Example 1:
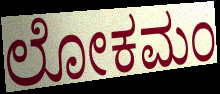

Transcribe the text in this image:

ಲೋಕಮಂ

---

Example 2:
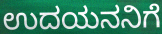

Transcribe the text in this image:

ಉದಯನನಿಗೆ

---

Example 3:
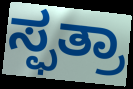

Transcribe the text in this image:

ಸ್ಫತ್ರಾ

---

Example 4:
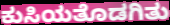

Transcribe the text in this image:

ಕುಸಿಯತೊಡಗಿತು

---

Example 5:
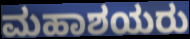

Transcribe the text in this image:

ಮಹಾಶಯರು